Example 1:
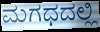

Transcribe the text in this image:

ಮಗಧದಲ್ಲಿ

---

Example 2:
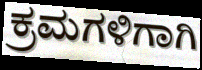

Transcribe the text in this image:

ಕ್ರಮಗಳಿಗಾಗಿ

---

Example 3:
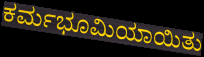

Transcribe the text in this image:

ಕರ್ಮಭೂಮಿಯಾಯಿತು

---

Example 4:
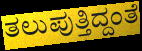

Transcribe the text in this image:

ತಲುಪುತ್ತಿದ್ದಂತೆ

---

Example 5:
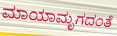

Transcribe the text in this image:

ಮಾಯಾಮೃಗದಂತೆ